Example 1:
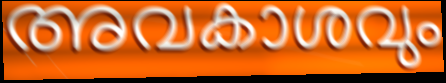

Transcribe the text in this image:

അവകാശവും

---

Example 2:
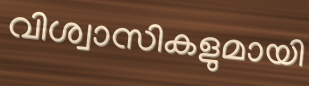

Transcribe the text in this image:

വിശ്വാസികളുമായി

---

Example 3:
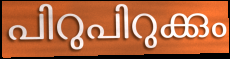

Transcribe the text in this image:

പിറുപിറുക്കും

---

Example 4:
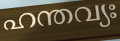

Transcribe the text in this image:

ഹന്തവ്യഃ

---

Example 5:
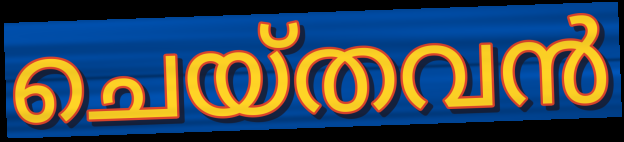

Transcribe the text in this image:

ചെയ്തവൻ